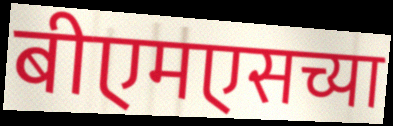
बीएमएसच्या